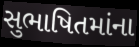
સુભાષિતમાંના